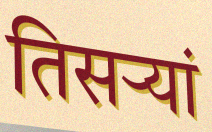
तिसऱ्यां